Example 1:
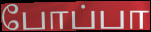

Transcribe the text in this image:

போப்பா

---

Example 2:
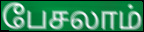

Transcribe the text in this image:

பேசலாம்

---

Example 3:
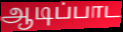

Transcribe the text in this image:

ஆடிப்பாட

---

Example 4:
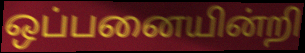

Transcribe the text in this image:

ஒப்பனையின்றி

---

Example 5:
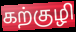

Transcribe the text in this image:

கற்குழி